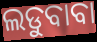
ଲଡୁବାବା